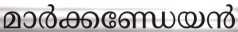
മാർക്കണ്ഡേയൻ